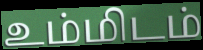
உம்மிடம்